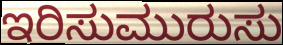
ಇರಿಸುಮುರುಸು